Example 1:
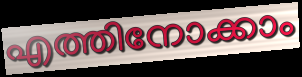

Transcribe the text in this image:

എത്തിനോക്കാം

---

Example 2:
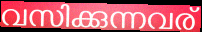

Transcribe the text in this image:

വസിക്കുന്നവര്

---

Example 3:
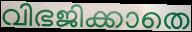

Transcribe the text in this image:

വിഭജിക്കാതെ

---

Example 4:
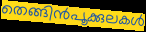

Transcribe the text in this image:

തെങ്ങിൻപൂക്കുലകൾ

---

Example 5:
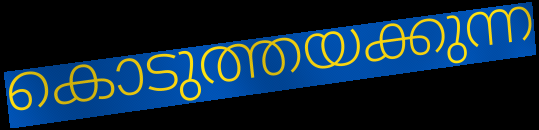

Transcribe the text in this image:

കൊടുത്തയക്കുന്ന